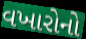
વખારોનો